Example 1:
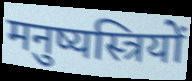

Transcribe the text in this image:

मनुष्यस्त्रियों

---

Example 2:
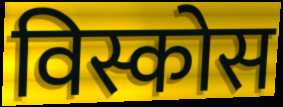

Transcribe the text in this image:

विस्कोस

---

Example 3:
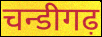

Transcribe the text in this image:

चन्डीगढ़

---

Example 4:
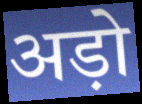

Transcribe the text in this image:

अड़ो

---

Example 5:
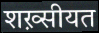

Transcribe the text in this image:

शख़्सीयत